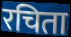
रचिता